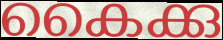
കൈക്കു